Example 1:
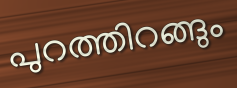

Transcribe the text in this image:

പുറത്തിറങ്ങും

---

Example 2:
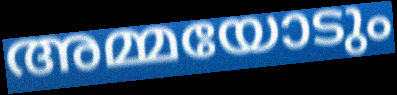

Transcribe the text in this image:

അമ്മയോടും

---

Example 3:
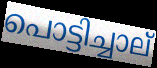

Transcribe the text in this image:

പൊട്ടിച്ചാല്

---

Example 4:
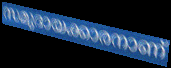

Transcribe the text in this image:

സമുദായക്കാരനാണ്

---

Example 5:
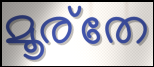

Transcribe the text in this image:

മൂര്തേ